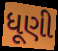
ધૂણી